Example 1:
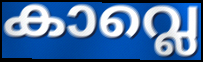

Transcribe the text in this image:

കാവ്ലെ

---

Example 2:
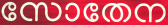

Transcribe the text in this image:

സോതേന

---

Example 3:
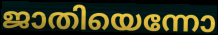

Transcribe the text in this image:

ജാതിയെന്നോ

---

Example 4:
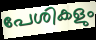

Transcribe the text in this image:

പേശികളും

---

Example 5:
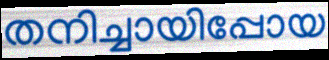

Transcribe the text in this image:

തനിച്ചായിപ്പോയ